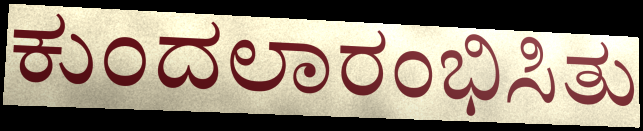
ಕುಂದಲಾರಂಭಿಸಿತು